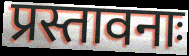
प्रस्तावनाः